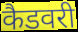
कैडवरी